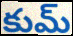
కుమ్